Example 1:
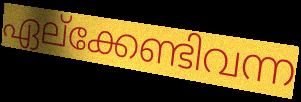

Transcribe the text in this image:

ഏല്ക്കേണ്ടിവന്ന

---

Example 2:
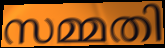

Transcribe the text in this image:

സമ്മതി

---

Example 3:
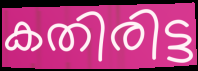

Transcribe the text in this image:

കതിരിട്ട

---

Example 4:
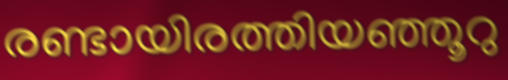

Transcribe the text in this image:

രണ്ടായിരത്തിയഞ്ഞൂറു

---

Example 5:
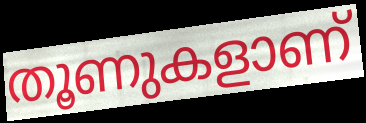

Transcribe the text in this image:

തൂണുകളാണ്